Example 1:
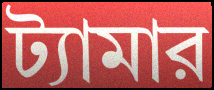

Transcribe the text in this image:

ট্যামার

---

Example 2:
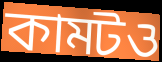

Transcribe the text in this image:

কামটও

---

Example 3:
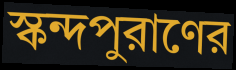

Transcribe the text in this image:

স্কন্দপুরাণের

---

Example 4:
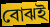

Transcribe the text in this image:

বোঝই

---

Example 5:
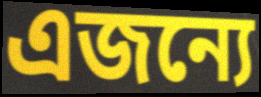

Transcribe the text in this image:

এজন্যে